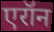
एरॉन